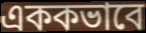
এককভাবে